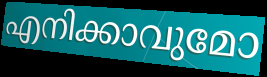
എനിക്കാവുമോ